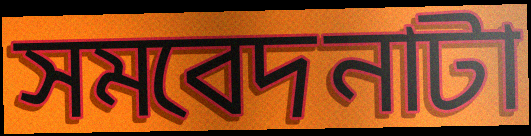
সমবেদনাটা